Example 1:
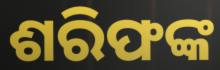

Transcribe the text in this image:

ଶରିଫଙ୍କ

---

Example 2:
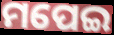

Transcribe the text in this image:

ମପେଇ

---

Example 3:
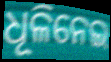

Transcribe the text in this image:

ଧୂଳିନେଇ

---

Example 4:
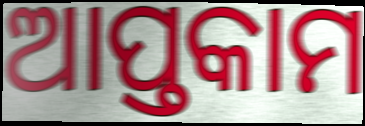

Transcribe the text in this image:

ଆପ୍ତକାମ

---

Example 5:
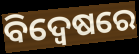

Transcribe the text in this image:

ବିଦ୍ଵେଷରେ